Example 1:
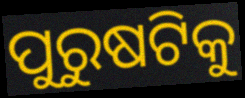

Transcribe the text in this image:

ପୁରୁଷଟିକୁ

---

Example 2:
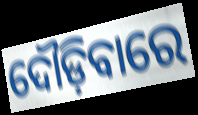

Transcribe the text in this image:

ଦୌଡ଼ିବାରେ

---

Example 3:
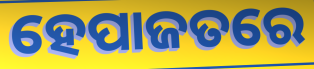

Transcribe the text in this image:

ହେପାଜତରେ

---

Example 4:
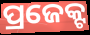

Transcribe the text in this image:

ପ୍ରଜେକ୍ଟ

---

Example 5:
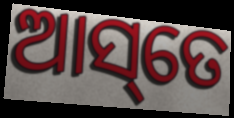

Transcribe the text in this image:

ଆସ୍‌ତେ